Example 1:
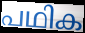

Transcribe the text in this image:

പഥിക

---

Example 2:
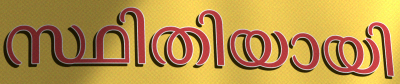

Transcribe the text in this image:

സ്ഥിതിയായി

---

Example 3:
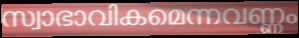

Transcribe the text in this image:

സ്വാഭാവികമെന്നവണ്ണം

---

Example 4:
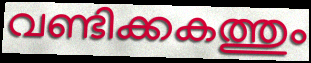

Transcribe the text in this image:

വണ്ടിക്കകത്തും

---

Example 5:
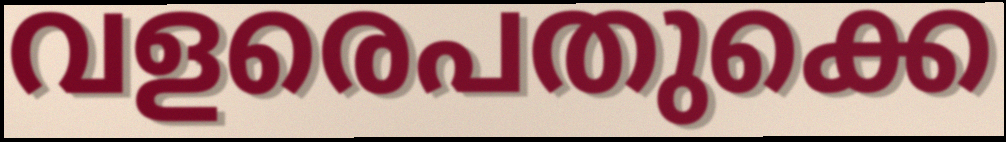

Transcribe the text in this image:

വളരെപതുക്കെ